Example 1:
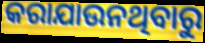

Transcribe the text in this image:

କରାଯାଉନଥିବାରୁ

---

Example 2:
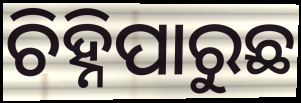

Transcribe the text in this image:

ଚିହ୍ନିପାରୁଛ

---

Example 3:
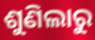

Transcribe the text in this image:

ଶୁଣିଲାରୁ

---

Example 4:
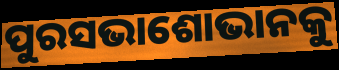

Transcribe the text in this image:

ପୁରସଭାଶୋଭାନକୁ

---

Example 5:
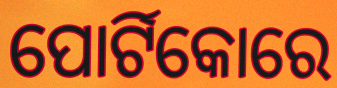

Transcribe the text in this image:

ପୋର୍ଟିକୋରେ